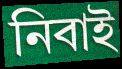
নিবাই